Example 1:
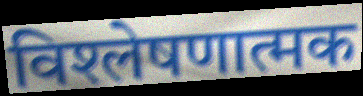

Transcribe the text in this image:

विश्लेषणात्मक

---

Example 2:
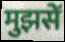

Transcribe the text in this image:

मुझसें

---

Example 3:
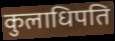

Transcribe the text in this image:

कुलाधिपति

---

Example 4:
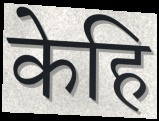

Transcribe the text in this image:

केहि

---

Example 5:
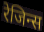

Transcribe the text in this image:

रेजिन्स